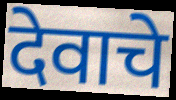
देवाचे